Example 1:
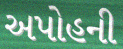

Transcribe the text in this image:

અપોહની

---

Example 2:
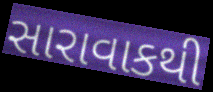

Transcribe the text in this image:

સારાવાકથી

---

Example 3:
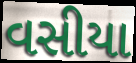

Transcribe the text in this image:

વસીયા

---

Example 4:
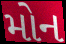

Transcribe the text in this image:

મોન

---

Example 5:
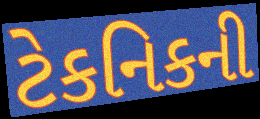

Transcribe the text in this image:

ટેકનિકની